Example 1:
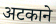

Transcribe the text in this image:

अटकाने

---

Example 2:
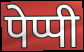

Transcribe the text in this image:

पेप्पी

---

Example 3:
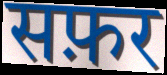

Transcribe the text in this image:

सफ़र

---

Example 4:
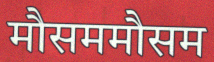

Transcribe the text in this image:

मौसममौसम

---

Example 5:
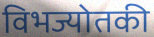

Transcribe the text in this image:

विभज्योतकी